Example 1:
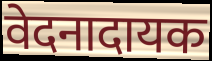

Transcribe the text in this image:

वेदनादायक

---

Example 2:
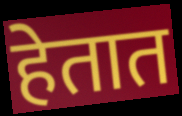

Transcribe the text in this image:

हेतात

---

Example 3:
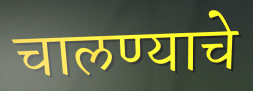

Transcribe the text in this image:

चालण्याचे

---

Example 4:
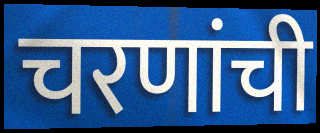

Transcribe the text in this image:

चरणांची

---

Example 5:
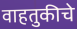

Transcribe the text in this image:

वाहतुकीचे